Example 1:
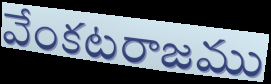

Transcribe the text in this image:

వేంకటరాజము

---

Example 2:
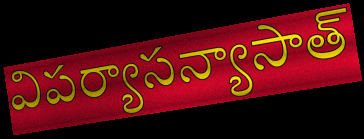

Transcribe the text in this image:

విపర్యాసన్యాసాత్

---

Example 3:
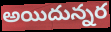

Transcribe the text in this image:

అయిదున్నర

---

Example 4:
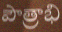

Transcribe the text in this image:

పౌత్రాభి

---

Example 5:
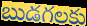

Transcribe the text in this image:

బుడగలకు